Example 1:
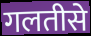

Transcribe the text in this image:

गलतीसे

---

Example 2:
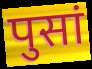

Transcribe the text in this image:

पुसां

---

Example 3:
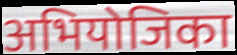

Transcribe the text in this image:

अभियोजिका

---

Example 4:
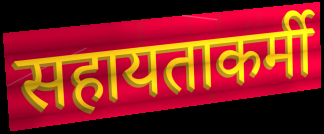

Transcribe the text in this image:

सहायताकर्मी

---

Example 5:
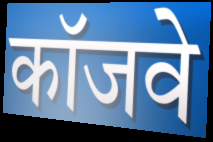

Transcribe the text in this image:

कॉजवे